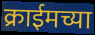
क्राईमच्या